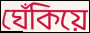
ঘেঁকিয়ে